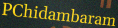
PChidambaram